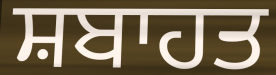
ਸ਼ਬਾਹਤ